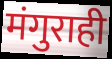
मंगुराही